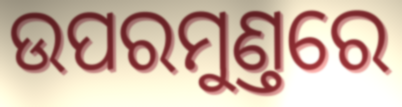
ଉପରମୁଣ୍ତରେ